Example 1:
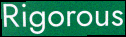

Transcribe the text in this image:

Rigorous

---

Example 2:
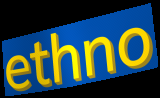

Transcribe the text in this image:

ethno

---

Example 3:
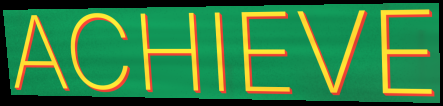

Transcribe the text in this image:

ACHIEVE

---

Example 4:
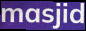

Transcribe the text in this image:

masjid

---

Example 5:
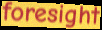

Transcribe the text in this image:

foresight